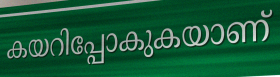
കയറിപ്പോകുകയാണ്